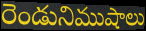
రెండునిముషాలు